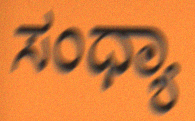
ಸಂಧ್ಯಾ